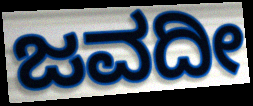
ಜವದೀ